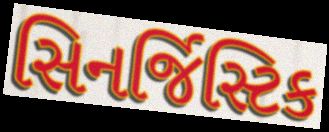
સિનર્જિસ્ટિક